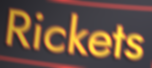
Rickets